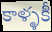
కాళ్ళకీ